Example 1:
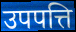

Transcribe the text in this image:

उपपत्ति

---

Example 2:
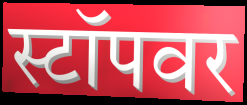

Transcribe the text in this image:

स्टॉपवर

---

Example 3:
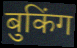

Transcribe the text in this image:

बुकिंग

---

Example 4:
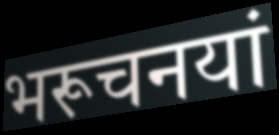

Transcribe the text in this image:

भरूचनयां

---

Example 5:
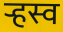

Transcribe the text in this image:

र्‍हस्व